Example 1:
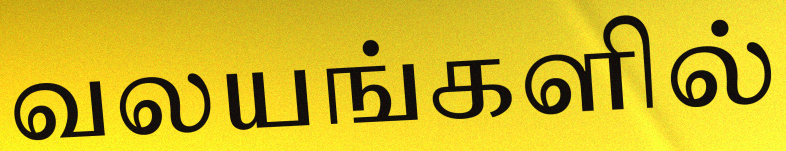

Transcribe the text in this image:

வலயங்களில்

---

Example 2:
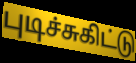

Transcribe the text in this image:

புடிச்சுகிட்டு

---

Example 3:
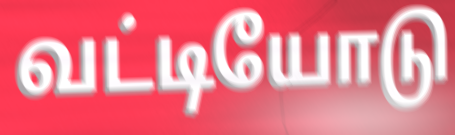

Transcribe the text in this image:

வட்டியோடு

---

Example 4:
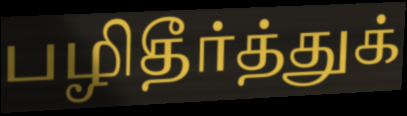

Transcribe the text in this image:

பழிதீர்த்துக்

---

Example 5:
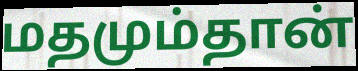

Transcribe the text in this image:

மதமும்தான்